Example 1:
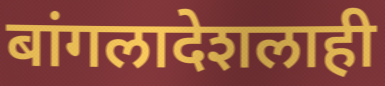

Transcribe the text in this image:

बांगलादेशलाही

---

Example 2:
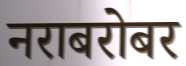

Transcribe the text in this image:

नराबरोबर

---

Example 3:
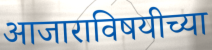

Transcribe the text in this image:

आजाराविषयीच्या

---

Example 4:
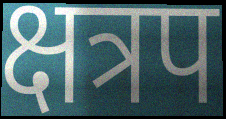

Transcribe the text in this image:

क्षत्रप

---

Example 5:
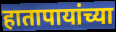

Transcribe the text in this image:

हातापायांच्या